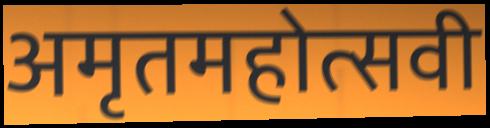
अमृतमहोत्सवी